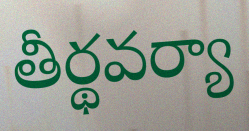
తీర్థవర్యా